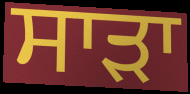
ਸਾੜਾ